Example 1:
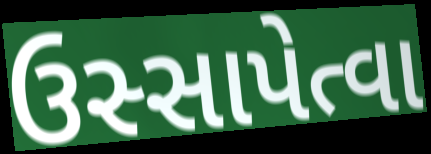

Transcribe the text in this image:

ઉસ્સાપેત્વા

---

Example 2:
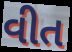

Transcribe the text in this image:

વીત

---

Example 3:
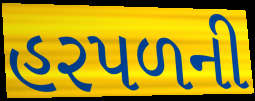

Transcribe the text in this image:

હરપળની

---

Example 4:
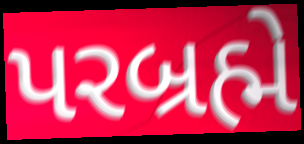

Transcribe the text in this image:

પરબ્રહ્મે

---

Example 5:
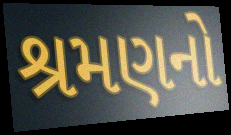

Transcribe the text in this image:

શ્રમણનો